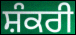
ਸ਼ੰਕਰੀ